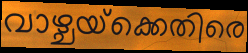
വാഴ്ചയ്‌ക്കെതിരെ